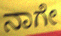
ನಾಗೇ